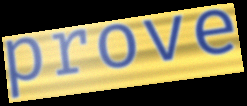
prove